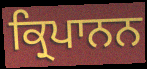
ਕ੍ਰਿਪਾਨਨ